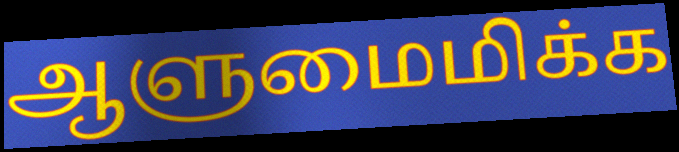
ஆளுமைமிக்க